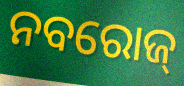
ନବରୋଜ୍